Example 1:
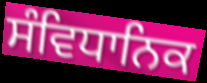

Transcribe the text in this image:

ਸੰਵਿਧਾਨਿਕ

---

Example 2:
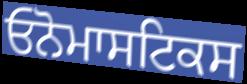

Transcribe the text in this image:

ਓਨੋਮਾਸਟਿਕਸ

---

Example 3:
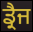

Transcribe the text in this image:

ਡ੍ਰੈਜ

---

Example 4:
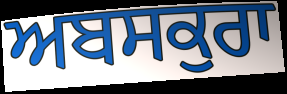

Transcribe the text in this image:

ਅਬਸਕੁਰਾ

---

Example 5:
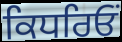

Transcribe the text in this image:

ਕਿਧਰਿਓਂ